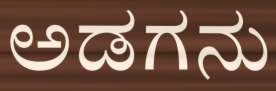
ಅಡಗನು